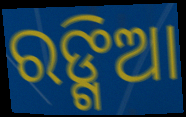
ରଙ୍ଗିଆ